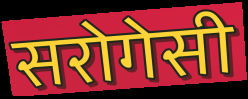
सरोगेसी